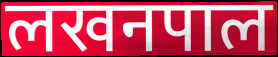
लखनपाल